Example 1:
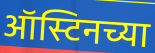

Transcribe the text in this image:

ऑस्टिनच्या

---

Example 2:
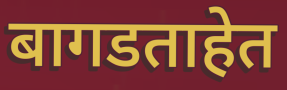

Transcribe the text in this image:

बागडताहेत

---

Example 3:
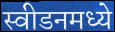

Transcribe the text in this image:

स्वीडनमध्ये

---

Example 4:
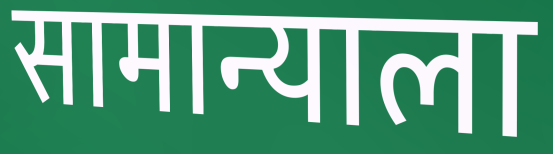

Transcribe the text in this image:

सामान्याला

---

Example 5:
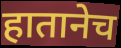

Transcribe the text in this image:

हातानेच